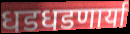
धडधडणार्या